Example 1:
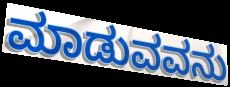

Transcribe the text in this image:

ಮಾಡುವವನು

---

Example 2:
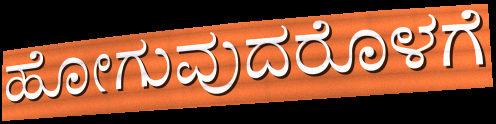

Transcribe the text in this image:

ಹೋಗುವುದರೊಳಗೆ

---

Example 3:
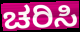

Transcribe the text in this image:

ಚರಿಸಿ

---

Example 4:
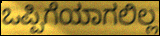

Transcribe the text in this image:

ಒಪ್ಪಿಗೆಯಾಗಲಿಲ್ಲ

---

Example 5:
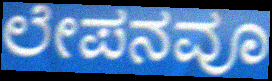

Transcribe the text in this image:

ಲೇಪನವೂ